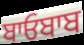
ਬਾਓਬਾਬ